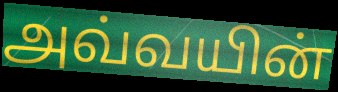
அவ்வயின்